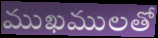
ముఖములతో